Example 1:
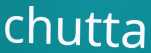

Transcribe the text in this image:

chutta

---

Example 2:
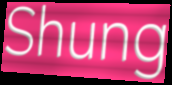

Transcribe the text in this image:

Shung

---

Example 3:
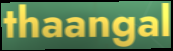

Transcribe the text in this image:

thaangal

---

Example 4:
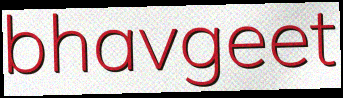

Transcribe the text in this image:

bhavgeet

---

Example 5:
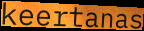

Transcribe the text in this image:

keertanas